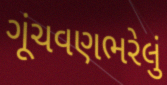
ગૂંચવણભરેલું